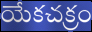
యేకచక్రం